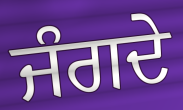
ਜੰਗਦੇ